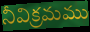
నీవిక్రమము